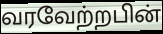
வரவேற்றபின்